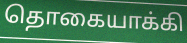
தொகையாக்கி